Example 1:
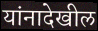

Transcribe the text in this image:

यांनादेखील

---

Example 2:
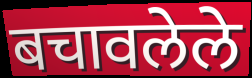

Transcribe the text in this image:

बचावलेले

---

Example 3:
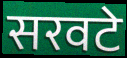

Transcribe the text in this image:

सरवटे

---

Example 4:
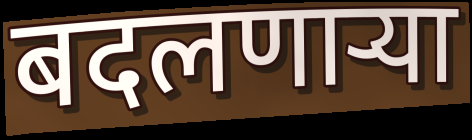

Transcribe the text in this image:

बदलणार्‍या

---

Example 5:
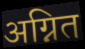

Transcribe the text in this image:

अग्नित